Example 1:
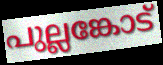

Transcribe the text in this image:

പുല്ലങ്കോട്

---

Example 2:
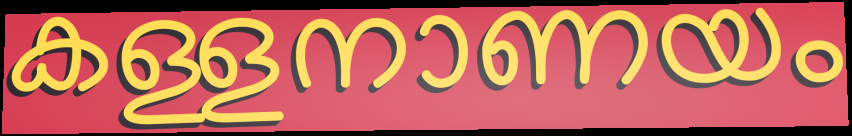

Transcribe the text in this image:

കള്ളനാണയം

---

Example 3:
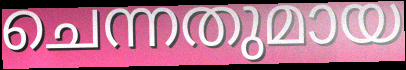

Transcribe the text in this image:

ചെന്നതുമായ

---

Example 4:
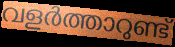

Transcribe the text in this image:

വളർത്താറുണ്ട്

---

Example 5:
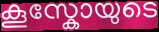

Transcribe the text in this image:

കൂസ്കോയുടെ